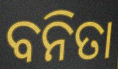
ବନିତା